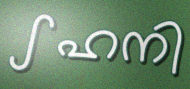
ഽഹനി